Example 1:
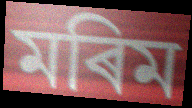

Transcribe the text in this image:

মৰিম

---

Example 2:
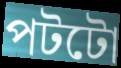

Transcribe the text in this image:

পটটো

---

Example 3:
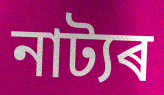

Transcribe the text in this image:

নাট্যৰ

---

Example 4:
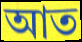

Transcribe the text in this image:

আত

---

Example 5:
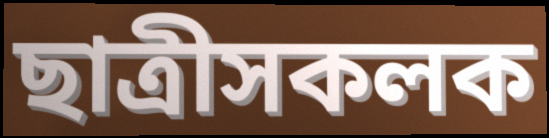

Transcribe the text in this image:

ছাত্ৰীসকলক